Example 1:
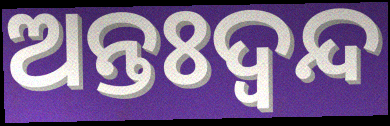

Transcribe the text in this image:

ଅନ୍ତଃଦ୍ବନ୍ଦ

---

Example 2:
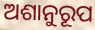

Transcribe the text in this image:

ଅଶାନୁରୂପ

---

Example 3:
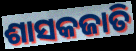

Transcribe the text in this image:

ଶାସକଜାତି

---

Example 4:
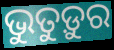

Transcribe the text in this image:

ଭୁତୁଡ଼ୁର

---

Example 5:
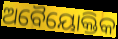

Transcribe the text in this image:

ଅବୈୟୋକ୍ତିକ